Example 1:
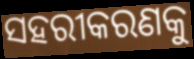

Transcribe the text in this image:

ସହରୀକରଣକୁ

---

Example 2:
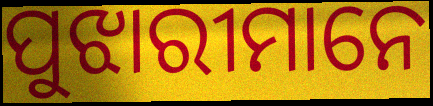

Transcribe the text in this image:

ପୁଝାରୀମାନେ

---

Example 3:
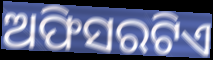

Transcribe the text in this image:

ଅଫିସରଟିଏ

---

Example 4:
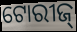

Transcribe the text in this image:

ଟୋରୀଜ୍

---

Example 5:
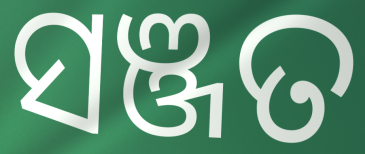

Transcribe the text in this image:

ସଞ୍ଜତ